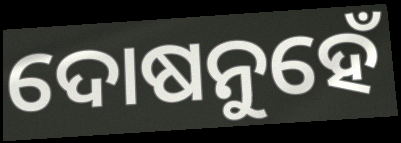
ଦୋଷନୁହେଁ